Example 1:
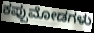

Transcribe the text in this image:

ಕಪ್ಪುಮೋಡಗಳು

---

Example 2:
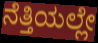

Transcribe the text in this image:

ನೆತ್ತಿಯಲ್ಲೇ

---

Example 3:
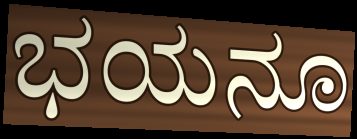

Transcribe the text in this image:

ಭಯನೂ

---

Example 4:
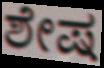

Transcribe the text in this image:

ಶೇಷ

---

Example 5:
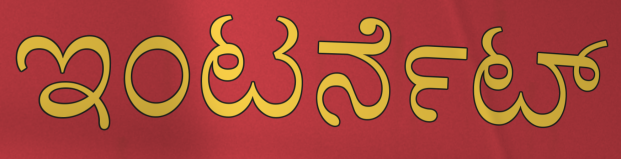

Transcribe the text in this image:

ಇಂಟರ್ನೆಟ್